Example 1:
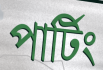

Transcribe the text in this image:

পার্টিং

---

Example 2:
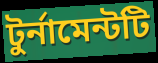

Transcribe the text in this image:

টুর্নামেন্টটি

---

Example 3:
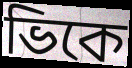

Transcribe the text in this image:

ভিকে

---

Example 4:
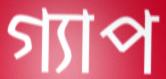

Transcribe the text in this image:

গ্যাপ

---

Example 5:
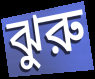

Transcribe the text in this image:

ঝুরু